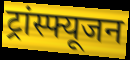
ट्रांस्फ्यूजन